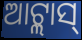
ଆଟ୍ଲାସ୍